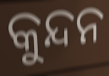
କୁନ୍ଦନ